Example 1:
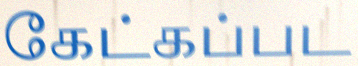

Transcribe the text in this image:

கேட்கப்பட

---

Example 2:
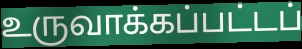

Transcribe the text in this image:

உருவாக்கப்பட்டப்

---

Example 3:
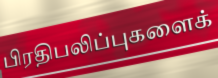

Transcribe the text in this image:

பிரதிபலிப்புகளைக்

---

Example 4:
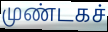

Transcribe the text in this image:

முண்டகச்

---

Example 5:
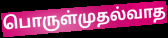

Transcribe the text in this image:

பொருள்முதல்வாத